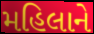
મહિલાને